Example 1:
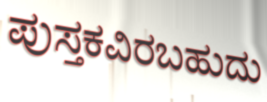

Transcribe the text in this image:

ಪುಸ್ತಕವಿರಬಹುದು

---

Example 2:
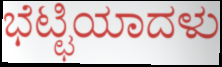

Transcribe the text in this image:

ಭೆಟ್ಟಿಯಾದಳು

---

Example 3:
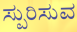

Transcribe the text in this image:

ಸ್ಪುರಿಸುವ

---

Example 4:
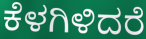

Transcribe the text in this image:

ಕೆಳಗಿಳಿದರೆ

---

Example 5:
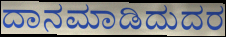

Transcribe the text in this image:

ದಾನಮಾಡಿದುದರ